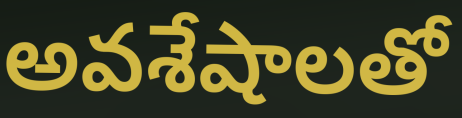
అవశేషాలతో